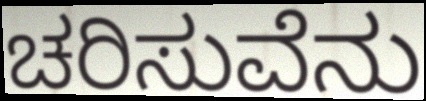
ಚರಿಸುವೆನು